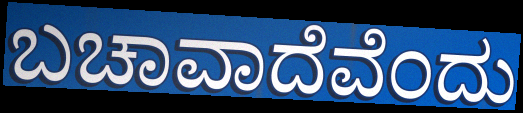
ಬಚಾವಾದೆವೆಂದು